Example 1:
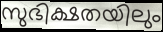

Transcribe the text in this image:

സുഭിക്ഷതയിലും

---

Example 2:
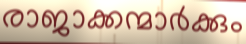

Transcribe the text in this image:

രാജാക്കന്മാർക്കും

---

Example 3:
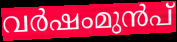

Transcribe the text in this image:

വർഷംമുൻപ്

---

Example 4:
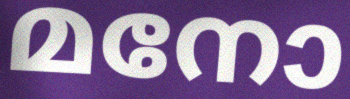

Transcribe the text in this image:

മനോ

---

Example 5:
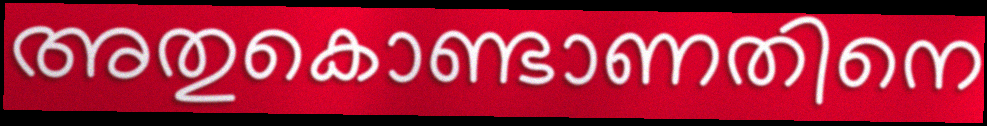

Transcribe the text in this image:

അതുകൊണ്ടാണതിനെ